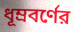
ধূম্রবর্ণের